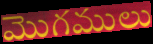
మొగములు